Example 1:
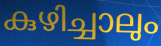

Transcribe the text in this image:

കുഴിച്ചാലും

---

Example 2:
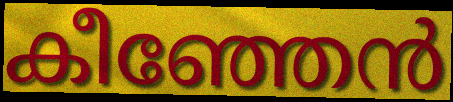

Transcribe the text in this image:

കീഞ്ഞേൻ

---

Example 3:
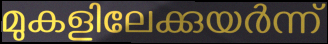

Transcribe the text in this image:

മുകളിലേക്കുയർന്ന്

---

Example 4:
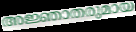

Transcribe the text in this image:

അജ്ഞാതരുമായ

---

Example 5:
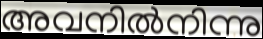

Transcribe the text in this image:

അവനിൽനിന്നു